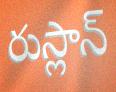
రుస్లాన్